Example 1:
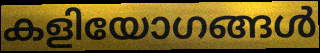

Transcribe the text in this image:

കളിയോഗങ്ങൾ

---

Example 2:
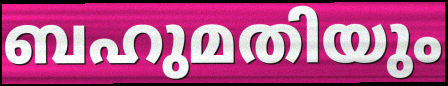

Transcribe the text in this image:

ബഹുമതിയും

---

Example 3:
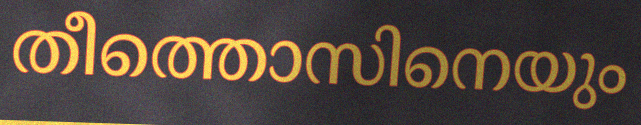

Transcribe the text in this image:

തീത്തൊസിനെയും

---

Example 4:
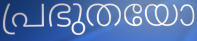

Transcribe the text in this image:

പ്രഭുതയോ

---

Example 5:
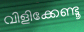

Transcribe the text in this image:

വിളിക്കേണ്ടൂ